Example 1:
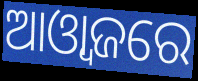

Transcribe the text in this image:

ଆଓ୍ୱାଜରେ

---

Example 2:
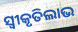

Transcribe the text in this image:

ସ୍ଵୀକୃତିଲାଭ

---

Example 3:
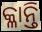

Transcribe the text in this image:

କ୍ଳାନ୍ତି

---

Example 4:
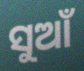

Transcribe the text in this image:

ସୁଆଁ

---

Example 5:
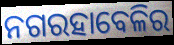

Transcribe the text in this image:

ନଗରହାବେଳିର